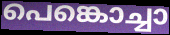
പെങ്കൊച്ചാ